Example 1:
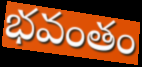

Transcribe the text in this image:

భవంతం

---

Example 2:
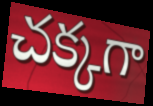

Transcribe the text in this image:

చక్కగా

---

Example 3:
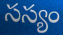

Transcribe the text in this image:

సస్యం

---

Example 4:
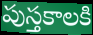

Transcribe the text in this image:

పుస్తకాలకి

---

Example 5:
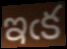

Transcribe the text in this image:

ఇఁక